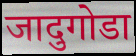
जादुगोडा